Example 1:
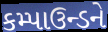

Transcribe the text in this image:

કમ્પાઉન્ડને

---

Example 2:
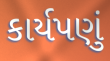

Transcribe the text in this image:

કાર્યપણું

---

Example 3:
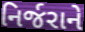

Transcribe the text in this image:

નિર્જરાને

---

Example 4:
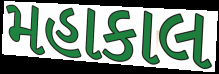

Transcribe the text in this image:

મહાકાલ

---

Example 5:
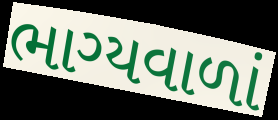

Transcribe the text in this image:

ભાગ્યવાળાં